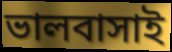
ভালবাসাই